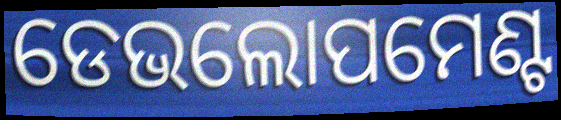
ଡେଭଲୋପମେଣ୍ଟ